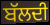
ਬੱਲਦੀ